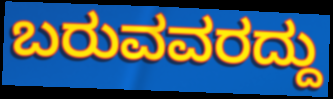
ಬರುವವರದ್ದು